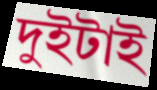
দুইটাই